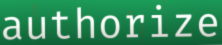
authorize